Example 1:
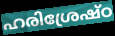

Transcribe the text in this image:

ഹരിശ്രേഷ്ഠ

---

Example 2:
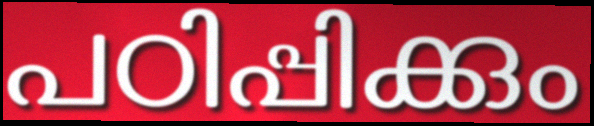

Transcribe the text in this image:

പഠിപ്പിക്കും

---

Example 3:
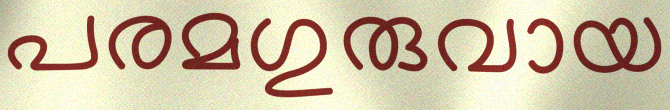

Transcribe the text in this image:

പരമഗുരുവായ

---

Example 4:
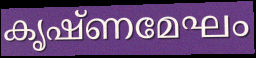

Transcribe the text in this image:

കൃഷ്ണമേഘം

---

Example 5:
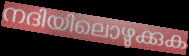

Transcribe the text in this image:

നദിയിലൊഴുക്കുക